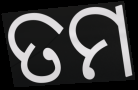
ତମ